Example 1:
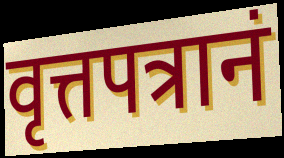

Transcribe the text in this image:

वृत्तपत्रानं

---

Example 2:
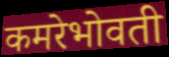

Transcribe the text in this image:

कमरेभोवती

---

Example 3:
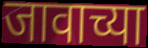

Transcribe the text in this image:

जावाच्या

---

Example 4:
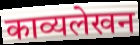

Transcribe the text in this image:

काव्यलेखन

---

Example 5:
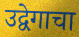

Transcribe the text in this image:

उद्वेगाचा